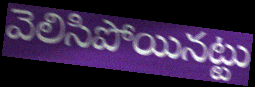
వెలిసిపోయినట్టు